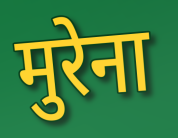
मुरेना